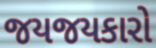
જયજયકારો